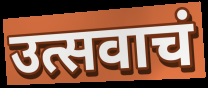
उत्सवाचं